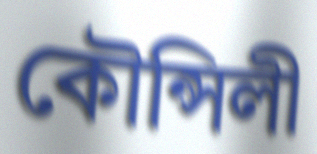
কৌন্সিলী